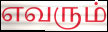
எவரும்